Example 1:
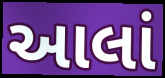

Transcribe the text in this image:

આલાં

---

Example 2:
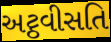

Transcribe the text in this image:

અટ્ઠવીસતિ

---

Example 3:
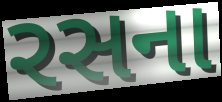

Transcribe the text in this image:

રસના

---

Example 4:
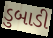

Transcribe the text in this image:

ડુબાડી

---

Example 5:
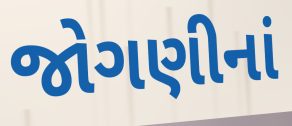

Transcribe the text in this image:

જોગણીનાં